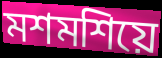
মশমশিয়ে